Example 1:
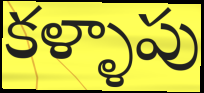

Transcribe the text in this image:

కళ్ళాపు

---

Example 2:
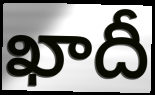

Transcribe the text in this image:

ఖాదీ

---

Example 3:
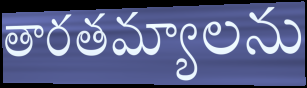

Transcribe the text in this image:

తారతమ్యాలను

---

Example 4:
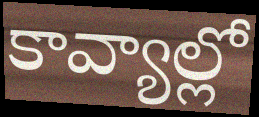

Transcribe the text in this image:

కావ్యాల్లో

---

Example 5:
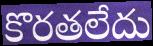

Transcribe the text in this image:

కొరతలేదు